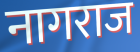
नागराज